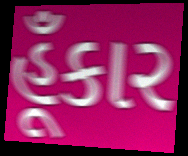
હૂઁકાર